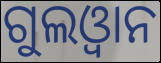
ଗୁଲଓ୍ୱାନ